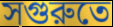
সগুরুতে